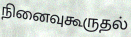
நினைவுகூருதல்